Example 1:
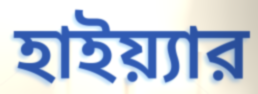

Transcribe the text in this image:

হাইয়্যার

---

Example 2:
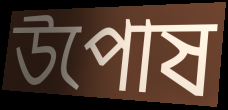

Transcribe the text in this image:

উপোষ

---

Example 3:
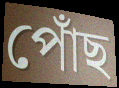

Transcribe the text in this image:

পোঁছ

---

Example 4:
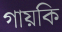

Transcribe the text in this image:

গায়কি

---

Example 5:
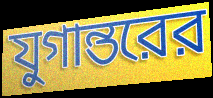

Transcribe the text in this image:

যুগান্তরের